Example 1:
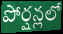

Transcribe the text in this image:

పోర్షన్లలో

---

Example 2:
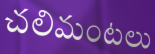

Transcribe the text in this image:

చలిమంటలు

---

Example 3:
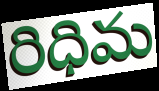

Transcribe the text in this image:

రిధిమ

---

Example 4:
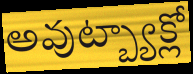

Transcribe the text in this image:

అవుట్బ్యాక్లో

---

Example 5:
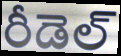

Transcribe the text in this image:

రీడెల్